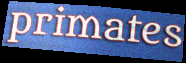
primates